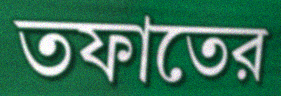
তফাতের